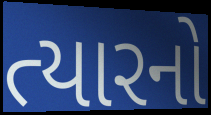
ત્યારનો